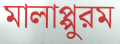
মালাপ্পুরম